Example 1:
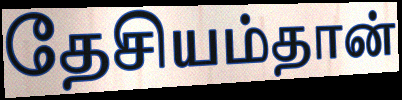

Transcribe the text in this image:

தேசியம்தான்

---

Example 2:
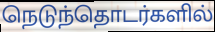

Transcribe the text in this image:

நெடுந்தொடர்களில்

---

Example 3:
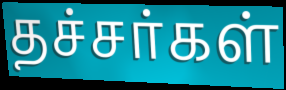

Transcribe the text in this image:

தச்சர்கள்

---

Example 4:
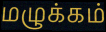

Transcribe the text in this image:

மழுக்கம்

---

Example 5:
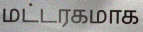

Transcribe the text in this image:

மட்டரகமாக